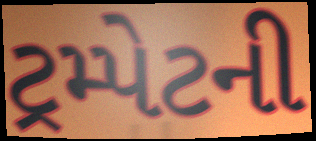
ટ્રમ્પેટની